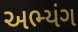
અભ્યંગ